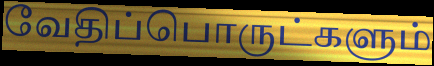
வேதிப்பொருட்களும்